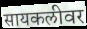
सायकलीवर